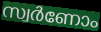
സ്വർണോം